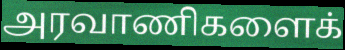
அரவாணிகளைக்